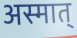
अस्मात्